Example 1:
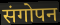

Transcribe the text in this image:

संगोपन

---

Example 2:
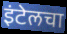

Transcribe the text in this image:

इंटेलचा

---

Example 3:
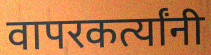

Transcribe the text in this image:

वापरकर्त्यांनी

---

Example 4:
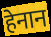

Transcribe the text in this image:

हेनान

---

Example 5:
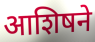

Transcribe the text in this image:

आशिषने